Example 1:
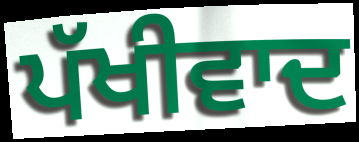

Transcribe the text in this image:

ਪੱਖੀਵਾਦ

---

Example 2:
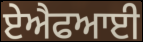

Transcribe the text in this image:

ਏਐਫਆਈ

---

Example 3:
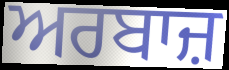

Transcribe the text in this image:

ਅਰਬਾਜ਼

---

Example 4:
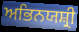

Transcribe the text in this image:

ਅਭਿਨਯਸ਼੍ਰੀ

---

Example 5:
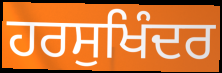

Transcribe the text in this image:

ਹਰਸੁਖਿੰਦਰ